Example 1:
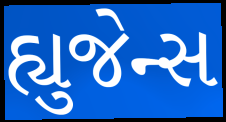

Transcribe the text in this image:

હ્યુજેન્સ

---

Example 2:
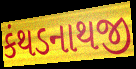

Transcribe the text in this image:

કંથડનાથજી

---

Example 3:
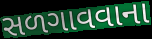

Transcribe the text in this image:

સળગાવવાના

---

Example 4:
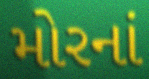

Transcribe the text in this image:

મોરનાં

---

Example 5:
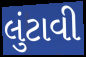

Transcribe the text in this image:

લુંટાવી